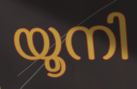
യൂനി